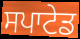
ਸਪਾਟੇਡ